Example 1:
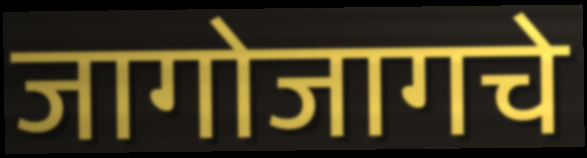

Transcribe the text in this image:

जागोजागचे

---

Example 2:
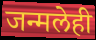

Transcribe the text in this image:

जन्मलेही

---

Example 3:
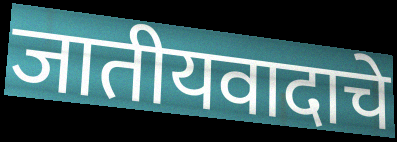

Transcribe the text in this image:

जातीयवादाचे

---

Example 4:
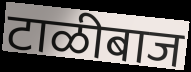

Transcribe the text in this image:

टाळीबाज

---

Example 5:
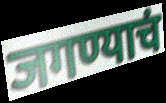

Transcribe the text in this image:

जगण्याचं